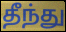
தீந்து